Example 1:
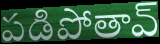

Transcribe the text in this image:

పడిపోతావ్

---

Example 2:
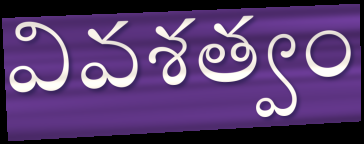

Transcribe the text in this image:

వివశత్వం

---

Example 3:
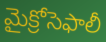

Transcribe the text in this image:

మైక్రోసెఫాలీ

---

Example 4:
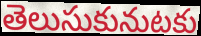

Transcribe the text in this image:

తెలుసుకునుటకు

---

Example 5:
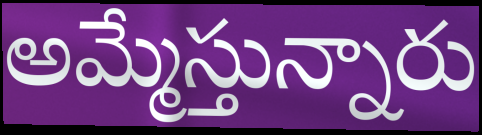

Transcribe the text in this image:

అమ్మేస్తున్నారు